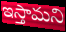
ఇస్తామని